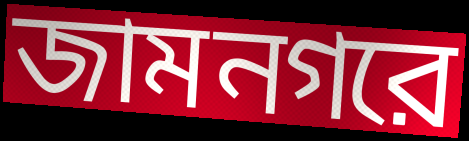
জামনগরে